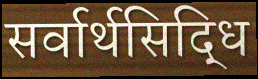
सर्वार्थसिद्धि